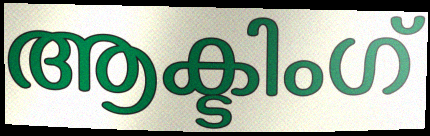
ആക്ടിംഗ്